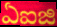
ఏఐజి